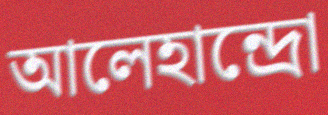
আলেহান্দ্রো